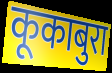
कूकाबुरा